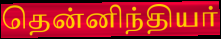
தென்னிந்தியர்